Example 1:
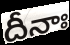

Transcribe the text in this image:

దీనాః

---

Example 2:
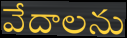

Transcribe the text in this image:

వేదాలను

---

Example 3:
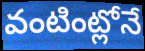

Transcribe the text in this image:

వంటింట్లోనే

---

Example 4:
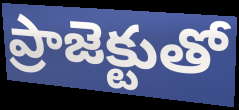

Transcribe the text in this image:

ప్రాజెక్టుతో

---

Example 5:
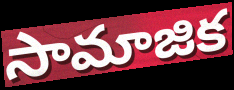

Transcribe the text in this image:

సామాజిక